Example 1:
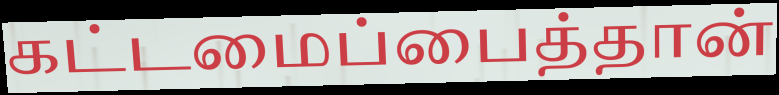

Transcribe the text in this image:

கட்டமைப்பைத்தான்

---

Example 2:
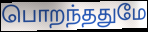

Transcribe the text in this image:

பொறந்ததுமே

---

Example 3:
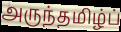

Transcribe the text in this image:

அருந்தமிழ்ப்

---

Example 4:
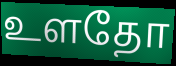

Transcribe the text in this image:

உளதோ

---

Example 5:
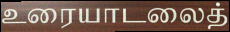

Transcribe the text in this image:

உரையாடலைத்